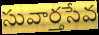
సువార్తసేవ